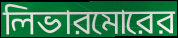
লিভারমোরের